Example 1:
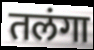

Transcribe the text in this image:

तलंगा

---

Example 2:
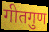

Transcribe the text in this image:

गीतगुण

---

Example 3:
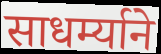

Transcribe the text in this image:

साधर्म्याने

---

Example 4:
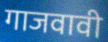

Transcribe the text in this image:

गाजवावी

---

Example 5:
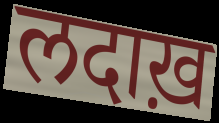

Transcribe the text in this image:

लदाख़